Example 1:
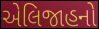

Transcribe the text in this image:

એલિજાહનો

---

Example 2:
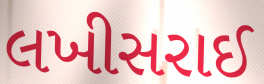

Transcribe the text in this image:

લખીસરાઈ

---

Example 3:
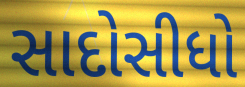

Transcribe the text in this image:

સાદોસીધો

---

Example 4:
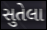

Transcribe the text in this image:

સુતેલા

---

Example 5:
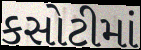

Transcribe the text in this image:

કસોટીમાં